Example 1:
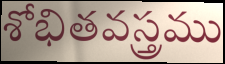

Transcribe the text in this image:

శోభితవస్త్రము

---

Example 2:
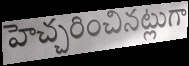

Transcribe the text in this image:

హెచ్చరించినట్లుగా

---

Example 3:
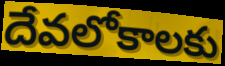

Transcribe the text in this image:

దేవలోకాలకు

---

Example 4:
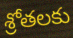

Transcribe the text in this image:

శ్రోతలకు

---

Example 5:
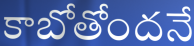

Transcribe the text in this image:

కాబోతోందనే